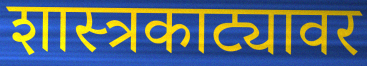
शास्त्रकाट्यावर